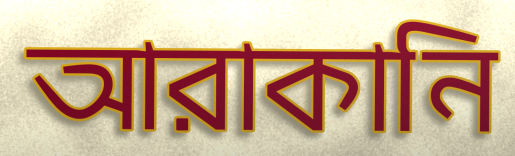
আরাকানি